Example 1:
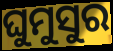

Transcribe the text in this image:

ଘୁମୁସୁର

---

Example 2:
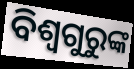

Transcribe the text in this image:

ବିଶ୍ୱଗୁରୁଙ୍କ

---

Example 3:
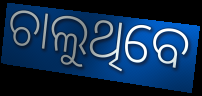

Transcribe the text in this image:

ଚାଲୁଥିବେ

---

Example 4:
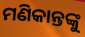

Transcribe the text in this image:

ମଣିକାନ୍ତଙ୍କୁ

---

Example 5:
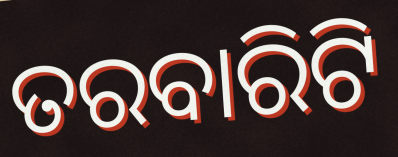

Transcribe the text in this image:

ତରବାରିଟି